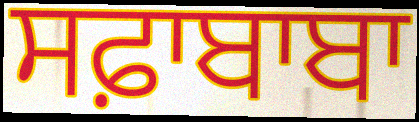
ਸਫ਼ਾਬਾਬਾ